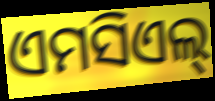
ଏମସିଏଲ୍